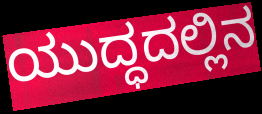
ಯುದ್ಧದಲ್ಲಿನ